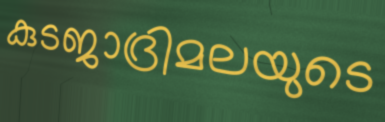
കുടജാദ്രിമലയുടെ